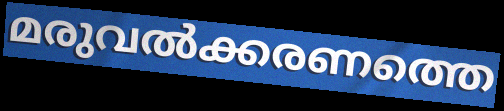
മരുവൽക്കരണത്തെ